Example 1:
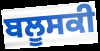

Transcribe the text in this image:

ਬਲੂਸਕੀ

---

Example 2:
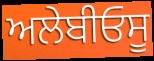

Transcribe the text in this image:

ਅਲੇਬੀਓਸੂ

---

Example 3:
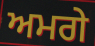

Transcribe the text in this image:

ਅਮਗੇ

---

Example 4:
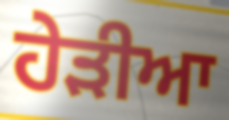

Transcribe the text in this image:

ਹੇੜੀਆ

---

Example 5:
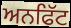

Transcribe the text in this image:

ਅਨਫਿੱਟ